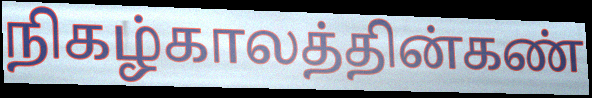
நிகழ்காலத்தின்கண்